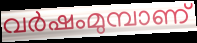
വർഷംമുമ്പാണ്